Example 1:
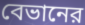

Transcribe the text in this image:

বেভানের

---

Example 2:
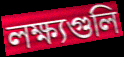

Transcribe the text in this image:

লক্ষ্যগুলি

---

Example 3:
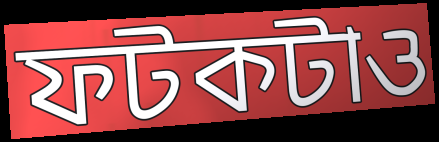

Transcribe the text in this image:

ফটকটাও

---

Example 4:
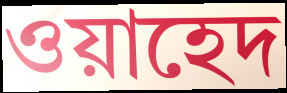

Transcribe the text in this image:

ওয়াহেদ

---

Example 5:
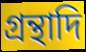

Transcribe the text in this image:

গ্রন্থাদি